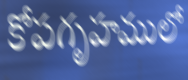
కోపగృహములో